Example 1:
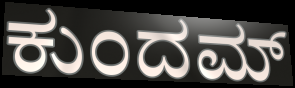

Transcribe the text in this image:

ಕುಂದಮ್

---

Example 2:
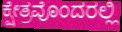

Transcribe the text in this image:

ಕ್ಷೇತ್ರವೊಂದರಲ್ಲಿ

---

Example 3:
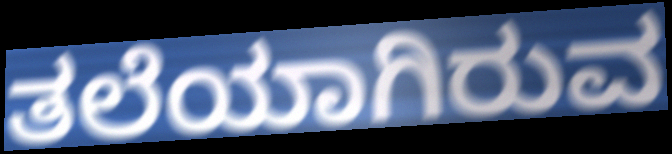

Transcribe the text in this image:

ತಲೆಯಾಗಿರುವ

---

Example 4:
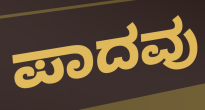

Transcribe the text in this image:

ಪಾದವು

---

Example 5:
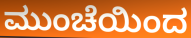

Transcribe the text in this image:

ಮುಂಚೆಯಿಂದ